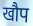
खौप